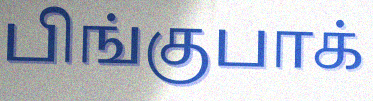
பிங்குபாக்